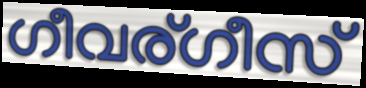
ഗീവര്ഗീസ്